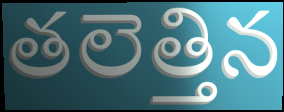
తలెత్తిన